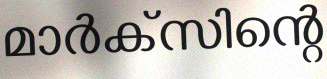
മാർക്‌സിന്റെ